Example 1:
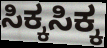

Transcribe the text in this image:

ಸಿಕ್ಕಸಿಕ್ಕ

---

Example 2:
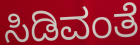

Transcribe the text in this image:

ಸಿಡಿವಂತೆ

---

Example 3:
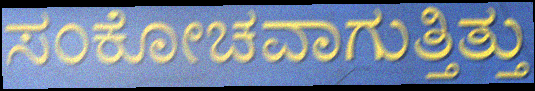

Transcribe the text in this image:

ಸಂಕೋಚವಾಗುತ್ತಿತ್ತು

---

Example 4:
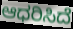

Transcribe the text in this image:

ಆಧರಿಸಿದೆ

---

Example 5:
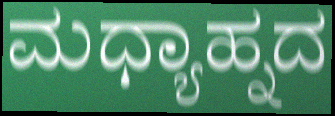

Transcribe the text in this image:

ಮಧ್ಯಾಹ್ನದ